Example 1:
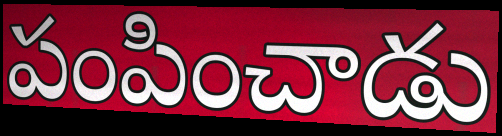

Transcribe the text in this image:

పంపించాడు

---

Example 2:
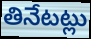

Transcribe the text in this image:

తినేటట్లు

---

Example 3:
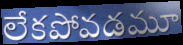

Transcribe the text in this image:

లేకపోవడమూ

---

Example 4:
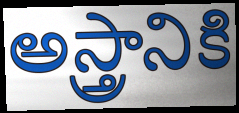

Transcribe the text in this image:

అస్త్రానికి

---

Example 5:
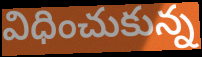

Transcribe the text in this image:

విధించుకున్న